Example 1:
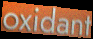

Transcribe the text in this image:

oxidant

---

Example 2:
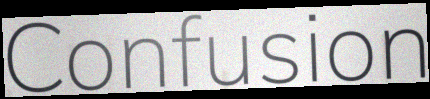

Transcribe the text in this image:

Confusion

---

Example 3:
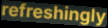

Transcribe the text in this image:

refreshingly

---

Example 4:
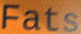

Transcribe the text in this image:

Fats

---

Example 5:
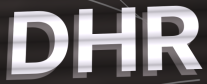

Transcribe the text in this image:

DHR